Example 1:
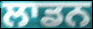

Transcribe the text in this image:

ਲਾਡਨ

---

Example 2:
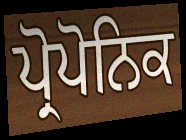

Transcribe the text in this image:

ਪ੍ਰੋਪੋਨਿਕ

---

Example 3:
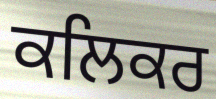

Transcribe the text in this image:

ਕਲਿਕਰ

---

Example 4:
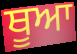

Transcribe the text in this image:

ਥੂਆ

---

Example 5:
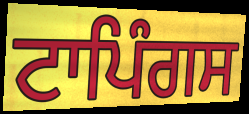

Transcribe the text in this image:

ਟਾਪਿੰਗਸ